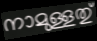
നാമുള്ളതു്